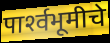
पार्श्वभूमीचे